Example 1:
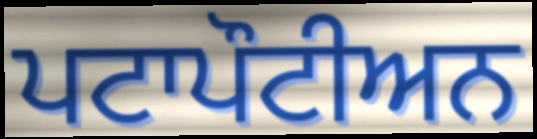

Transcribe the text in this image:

ਪਟਾਪੌਟੀਅਨ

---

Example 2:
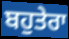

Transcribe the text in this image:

ਬਹੁਤੇਰਾ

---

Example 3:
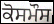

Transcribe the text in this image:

ਕੋਸਮੌਸ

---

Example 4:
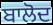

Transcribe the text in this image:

ਬਾਲੋਦ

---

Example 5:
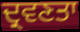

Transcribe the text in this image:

ਦ੍ਰਵਣਤਾ